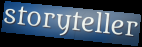
storyteller